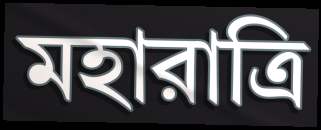
মহারাত্রি